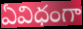
ఏవిధంగా